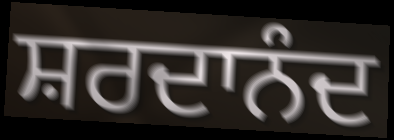
ਸ਼ਰਦਾਨੰਦ